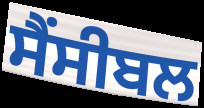
ਸੈਂਸੀਬਲ